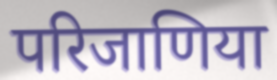
परिजाणिया